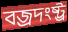
বজ্রদংষ্ট্র